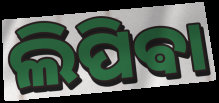
ଲିପିଵା